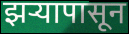
झऱ्यापासून